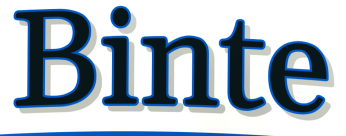
Binte